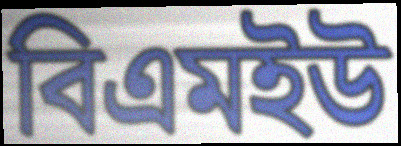
বিএমইউ